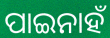
ପାଇନାହଁ